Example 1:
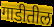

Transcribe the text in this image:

गाडीतील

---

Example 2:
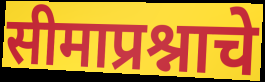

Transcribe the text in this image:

सीमाप्रश्नाचे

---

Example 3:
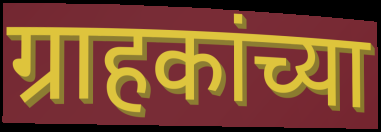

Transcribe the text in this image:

ग्राहकांच्या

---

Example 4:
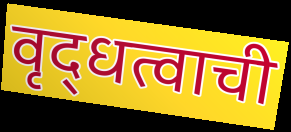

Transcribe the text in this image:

वृद्धत्वाची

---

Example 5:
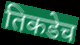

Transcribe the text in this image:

तिकडेच